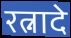
रत्नादे